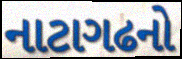
નાટાગઢનો